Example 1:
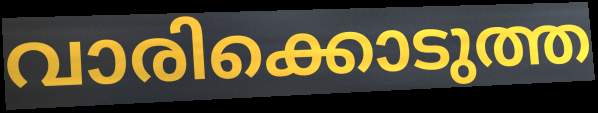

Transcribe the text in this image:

വാരിക്കൊടുത്ത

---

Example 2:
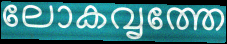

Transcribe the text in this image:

ലോകവൃത്തേ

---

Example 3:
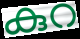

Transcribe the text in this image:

കുറ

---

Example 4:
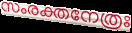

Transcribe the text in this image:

സംരക്തനേത്രഃ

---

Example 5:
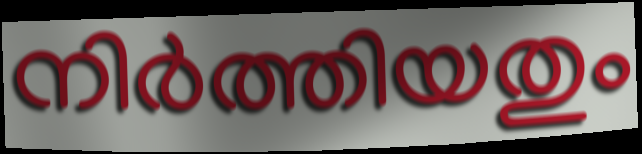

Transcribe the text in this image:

നിർത്തിയതും